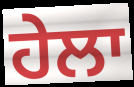
ਹੇਲਾ